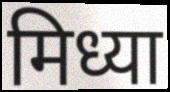
मिध्या